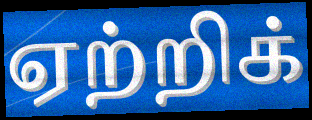
ஏற்றிக்